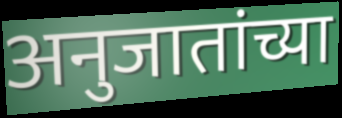
अनुजातांच्या